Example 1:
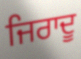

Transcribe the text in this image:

ਜਿਰਾਦੂ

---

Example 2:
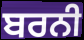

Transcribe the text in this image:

ਬਰਨੀ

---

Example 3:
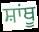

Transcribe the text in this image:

ਸ਼ਾਂਥੂ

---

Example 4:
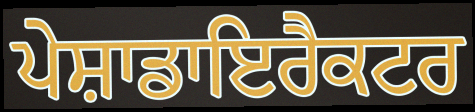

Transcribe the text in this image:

ਪੇਸ਼ਾਡਾਇਰੈਕਟਰ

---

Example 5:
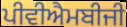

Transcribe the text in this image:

ਪੀਵੀਐਮਬੀਜੀ